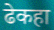
ढेकहा